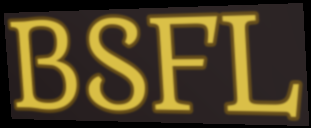
BSFL